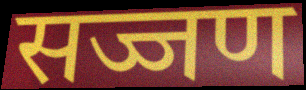
सज्जण